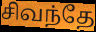
சிவந்தே